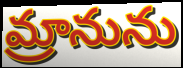
మ్రానును